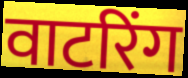
वाटरिंग